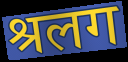
श्रलग